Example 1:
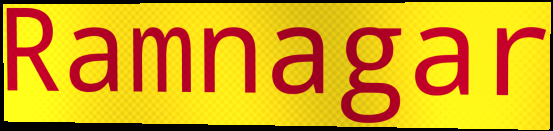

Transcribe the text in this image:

Ramnagar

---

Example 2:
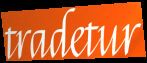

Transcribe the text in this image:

tradetur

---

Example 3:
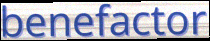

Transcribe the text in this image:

benefactor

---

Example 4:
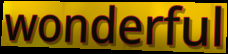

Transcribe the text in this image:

wonderful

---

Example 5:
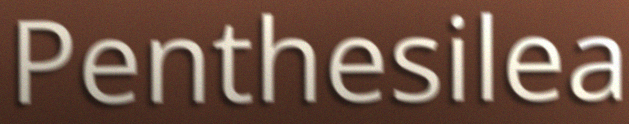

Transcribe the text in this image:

Penthesilea